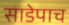
साडेपाच